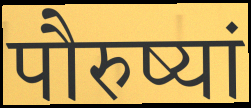
पौरुष्यां